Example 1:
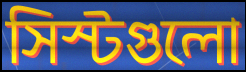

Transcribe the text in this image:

সিস্টগুলো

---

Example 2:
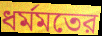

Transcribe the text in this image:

ধর্মমতের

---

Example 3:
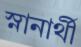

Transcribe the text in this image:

স্নানার্থী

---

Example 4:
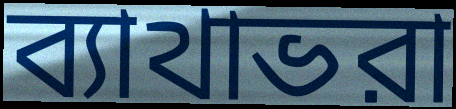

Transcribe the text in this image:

ব্যাথাভরা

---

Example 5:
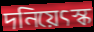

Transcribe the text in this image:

দনিয়েৎস্ক